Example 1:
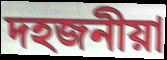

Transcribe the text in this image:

দহজনীয়া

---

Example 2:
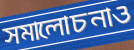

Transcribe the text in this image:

সমালোচনাও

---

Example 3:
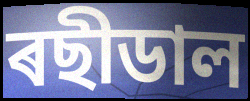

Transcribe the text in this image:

ৰছীডাল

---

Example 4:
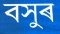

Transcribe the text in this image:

বসুৰ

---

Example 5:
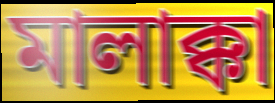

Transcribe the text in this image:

মালাক্কা